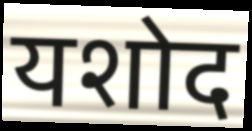
यशोद